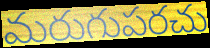
మరుగుపరచు